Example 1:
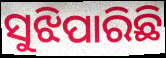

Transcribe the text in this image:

ସୁଝିପାରିଛି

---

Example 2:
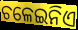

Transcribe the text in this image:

ଚଳେଇନିଏ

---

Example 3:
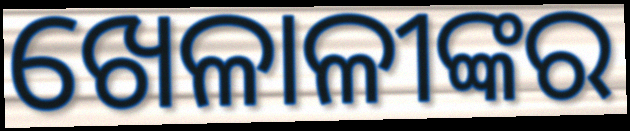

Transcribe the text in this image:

ଖେଳାଳୀଙ୍କର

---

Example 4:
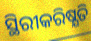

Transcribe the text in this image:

ସ୍ଥିରୀକରିଷ୍ଯତି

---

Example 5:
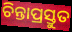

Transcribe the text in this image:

ଚିନ୍ତାପ୍ରସ୍ତୁତ